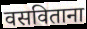
वसविताना